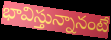
భావిస్తున్నానంటే